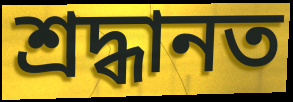
শ্রদ্ধানত